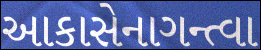
આકાસેનાગન્ત્વા